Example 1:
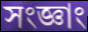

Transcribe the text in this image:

সংজ্ঞাং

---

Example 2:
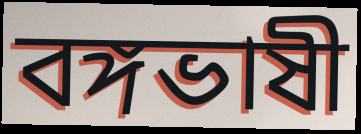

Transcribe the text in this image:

বঙ্গভাষী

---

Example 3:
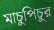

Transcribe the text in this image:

মাচুপিচুর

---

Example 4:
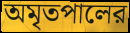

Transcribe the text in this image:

অমৃতপালের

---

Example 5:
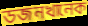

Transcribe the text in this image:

ডজনখানেক